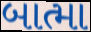
બાત્મા